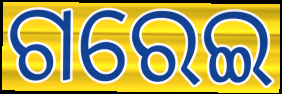
ଗରେଇ